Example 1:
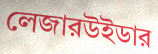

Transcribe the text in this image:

লেজারউইডার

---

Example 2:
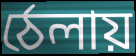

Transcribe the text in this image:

ঠেলায়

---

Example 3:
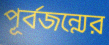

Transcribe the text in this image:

পূর্বজন্মের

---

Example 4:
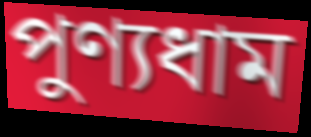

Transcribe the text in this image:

পুণ্যধাম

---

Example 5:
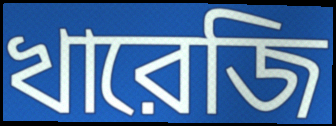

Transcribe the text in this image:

খারেজি